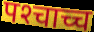
पश्चाच्च